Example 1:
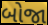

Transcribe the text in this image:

બોજા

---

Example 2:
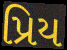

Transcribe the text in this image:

પ્રિય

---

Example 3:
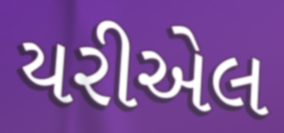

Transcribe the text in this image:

યરીએલ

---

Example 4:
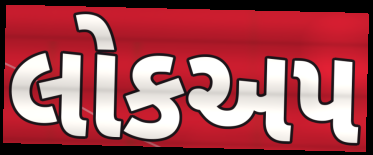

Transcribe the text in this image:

લોકઅપ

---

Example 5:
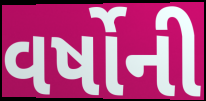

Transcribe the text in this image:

વર્ષોની